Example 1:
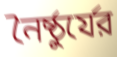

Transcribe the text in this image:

নৈষ্ঠুর্যের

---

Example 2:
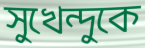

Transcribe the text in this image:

সুখেন্দুকে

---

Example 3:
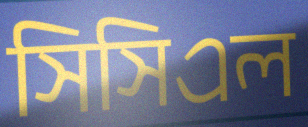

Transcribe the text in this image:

সিসিএল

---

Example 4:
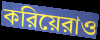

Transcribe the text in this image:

করিয়েরাও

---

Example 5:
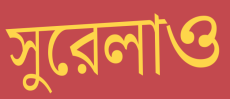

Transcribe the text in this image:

সুরেলাও